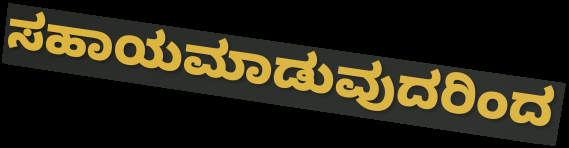
ಸಹಾಯಮಾಡುವುದರಿಂದ